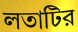
লতাটির